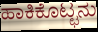
ಹಾಕಿಕೊಟ್ಟನು